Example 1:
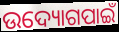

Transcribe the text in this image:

ଉଦ୍ୟୋଗପାଇଁ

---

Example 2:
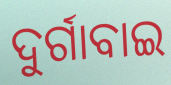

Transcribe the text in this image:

ଦୁର୍ଗାବାଇ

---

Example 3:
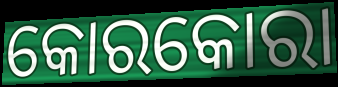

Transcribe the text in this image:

କୋରକୋରା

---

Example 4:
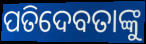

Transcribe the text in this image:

ପତିଦେବତାଙ୍କୁ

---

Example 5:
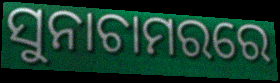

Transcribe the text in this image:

ସୁନାଚାମରରେ